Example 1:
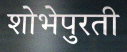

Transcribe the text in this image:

शोभेपुरती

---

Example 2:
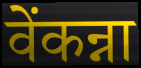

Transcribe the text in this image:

वेंकन्ना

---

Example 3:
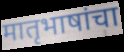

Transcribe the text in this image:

मातृभाषांचा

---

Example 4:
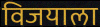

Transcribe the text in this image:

विजयाला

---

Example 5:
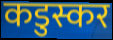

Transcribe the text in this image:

कडुस्कर